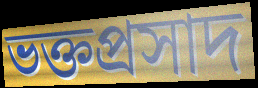
ভক্তপ্রসাদ